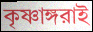
কৃষ্ণাঙ্গরাই